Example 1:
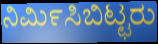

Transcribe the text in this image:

ನಿರ್ಮಿಸಿಬಿಟ್ಟರು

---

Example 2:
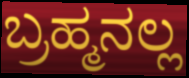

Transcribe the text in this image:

ಬ್ರಹ್ಮನಲ್ಲ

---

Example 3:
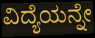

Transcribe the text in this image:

ವಿದ್ಯೆಯನ್ನೇ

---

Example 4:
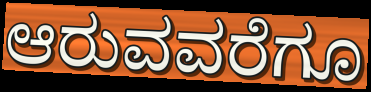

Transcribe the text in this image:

ಆರುವವರೆಗೂ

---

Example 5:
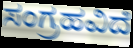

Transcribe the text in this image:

ಸಂಗ್ರಹವಿದೆ